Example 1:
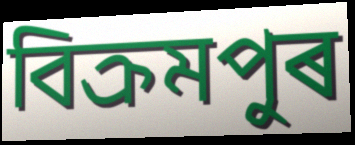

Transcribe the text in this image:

বিক্ৰমপুৰ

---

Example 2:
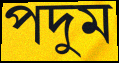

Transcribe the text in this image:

পদুম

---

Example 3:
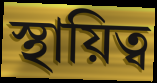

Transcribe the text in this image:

স্থায়িত্ব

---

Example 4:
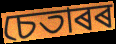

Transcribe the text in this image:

চেতাৰৰ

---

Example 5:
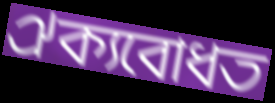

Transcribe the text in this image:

ঐক্যবোধত